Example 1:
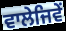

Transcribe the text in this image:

ਵਾਲੇਜਿਵੇਂ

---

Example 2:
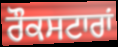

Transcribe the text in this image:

ਰੌਕਸਟਾਰਾਂ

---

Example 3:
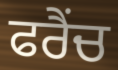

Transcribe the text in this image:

ਫਰੈਂਚ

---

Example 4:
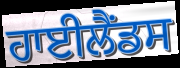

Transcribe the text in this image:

ਹਾਈਲੈਂਡਸ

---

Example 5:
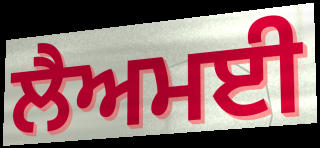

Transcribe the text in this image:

ਲੈਅਮਈ